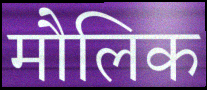
मौलिक